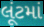
લૂંટમાં